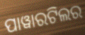
ପାୱାରଟିଲର